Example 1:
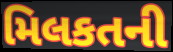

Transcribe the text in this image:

મિલકતની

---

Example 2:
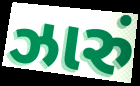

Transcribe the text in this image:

ઝારું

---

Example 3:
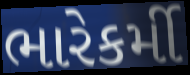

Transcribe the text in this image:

ભારેકર્મી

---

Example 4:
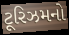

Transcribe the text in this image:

ટૂરિઝમનો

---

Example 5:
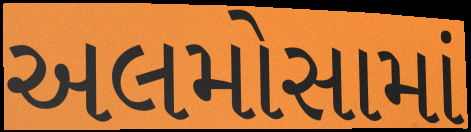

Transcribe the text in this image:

અલમોસામાં